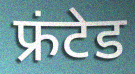
फ्रंटेड